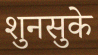
शुनसुके